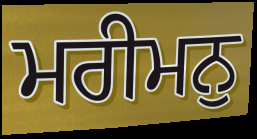
ਮਰੀਮਨੁ